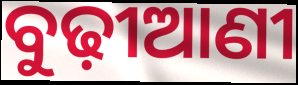
ବୁଢ଼ୀଆଣୀ